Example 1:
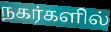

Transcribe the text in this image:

நகர்களில்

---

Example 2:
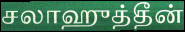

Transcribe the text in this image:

சலாஹுத்தீன்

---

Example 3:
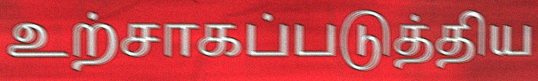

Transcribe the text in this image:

உற்சாகப்படுத்திய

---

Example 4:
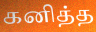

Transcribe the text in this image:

கனித்த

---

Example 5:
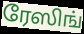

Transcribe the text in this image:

ரேஸிங்